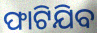
ଫାଟିଯିବ